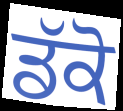
ਡੱਕੋ